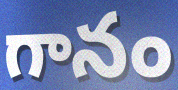
గానం